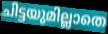
ചിട്ടയുമില്ലാതെ